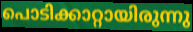
പൊടിക്കാറ്റായിരുന്നു